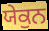
ਯੇਕੁਨ